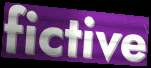
fictive